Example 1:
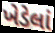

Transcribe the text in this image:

ખેડેલાં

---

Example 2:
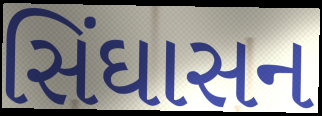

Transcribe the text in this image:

સિંઘાસન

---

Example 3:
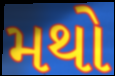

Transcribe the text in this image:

મથો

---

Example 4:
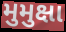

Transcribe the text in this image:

મુમુક્ષા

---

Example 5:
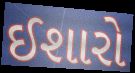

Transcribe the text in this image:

ઈશારો